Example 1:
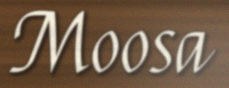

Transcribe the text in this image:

Moosa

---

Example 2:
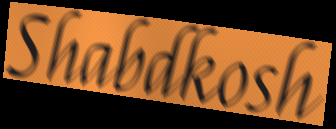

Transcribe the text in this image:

Shabdkosh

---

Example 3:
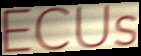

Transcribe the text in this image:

ECUs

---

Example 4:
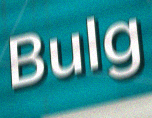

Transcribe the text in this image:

Bulg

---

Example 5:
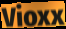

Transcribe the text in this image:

Vioxx